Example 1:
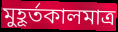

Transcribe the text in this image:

মুহূর্তকালমাত্র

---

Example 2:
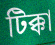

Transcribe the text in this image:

টিক্কা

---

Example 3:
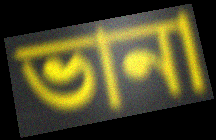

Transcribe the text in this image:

ভানা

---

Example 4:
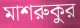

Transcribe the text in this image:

মাশরুকুর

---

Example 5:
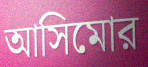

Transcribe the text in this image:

আসিমোর